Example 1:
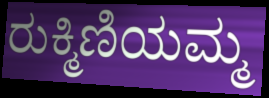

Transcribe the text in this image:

ರುಕ್ಮಿಣಿಯಮ್ಮ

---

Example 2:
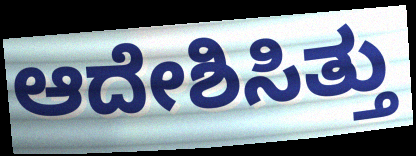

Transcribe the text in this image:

ಆದೇಶಿಸಿತ್ತು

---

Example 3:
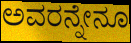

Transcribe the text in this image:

ಅವರನ್ನೇನೂ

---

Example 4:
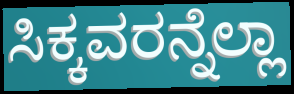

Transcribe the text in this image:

ಸಿಕ್ಕವರನ್ನೆಲ್ಲಾ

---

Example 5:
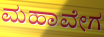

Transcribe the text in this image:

ಮಹಾವೇಗ